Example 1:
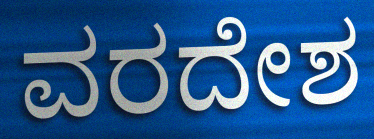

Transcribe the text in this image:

ವರದೇಶ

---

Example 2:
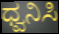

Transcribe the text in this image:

ಧ್ವನಿಸಿ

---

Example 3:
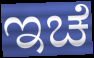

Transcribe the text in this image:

ಇಚೆ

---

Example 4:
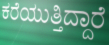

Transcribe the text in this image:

ಕರೆಯುತ್ತಿದ್ದಾರೆ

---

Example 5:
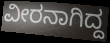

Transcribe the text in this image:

ವೀರನಾಗಿದ್ದ